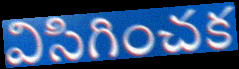
విసిగించక